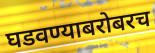
घडवण्याबरोबरच